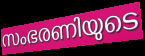
സംഭരണിയുടെ